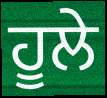
ਹੂਲੇ